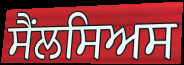
ਸੈਂਲਸਿਅਸ